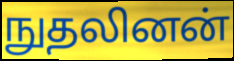
நுதலினன்